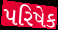
પરિષેક